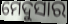
ମେଦୁସାର